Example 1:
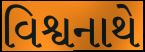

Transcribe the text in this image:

વિશ્વનાથે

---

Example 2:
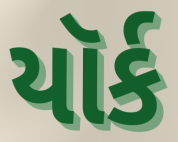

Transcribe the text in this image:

યૉર્ક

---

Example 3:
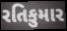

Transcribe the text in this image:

રતિકુમાર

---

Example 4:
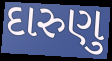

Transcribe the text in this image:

દારુણુ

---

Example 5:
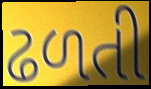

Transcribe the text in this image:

ઢળતી